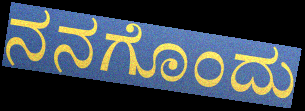
ನನಗೊಂದು